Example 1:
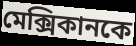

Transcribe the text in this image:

মেক্সিকানকে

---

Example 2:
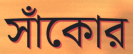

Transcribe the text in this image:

সাঁকোর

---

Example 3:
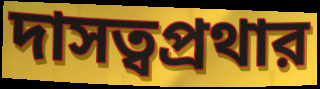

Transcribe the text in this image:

দাসত্বপ্রথার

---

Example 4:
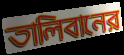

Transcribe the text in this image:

তালিবানের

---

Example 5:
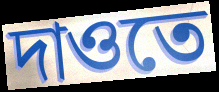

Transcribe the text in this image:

দাওতে